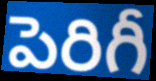
పెరిగీ